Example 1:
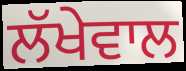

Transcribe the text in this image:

ਲੱਖੇਵਾਲ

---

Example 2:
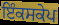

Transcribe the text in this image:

ਇੰਕਸਕੇਪ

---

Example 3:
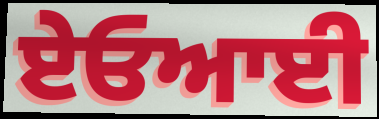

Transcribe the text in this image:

ਏਓਆਈ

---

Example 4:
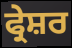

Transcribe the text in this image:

ਫ੍ਰੇਸ਼ਰ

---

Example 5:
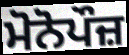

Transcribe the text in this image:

ਮੋਨੋਪੌਜ਼